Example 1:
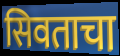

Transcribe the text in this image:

सिवताचा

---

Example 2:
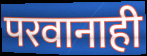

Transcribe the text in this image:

परवानाही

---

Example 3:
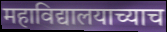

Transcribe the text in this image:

महाविद्यालयाच्याच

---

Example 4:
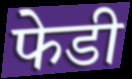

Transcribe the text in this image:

फेडी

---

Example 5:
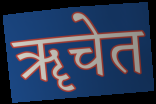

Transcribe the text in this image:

ॠचेत